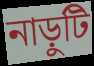
নাড়ুটি